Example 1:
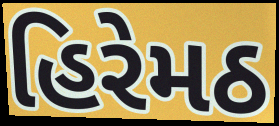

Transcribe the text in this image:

હિરેમઠ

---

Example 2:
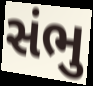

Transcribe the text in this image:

સંભુ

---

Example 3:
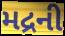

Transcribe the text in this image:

મદ્રની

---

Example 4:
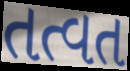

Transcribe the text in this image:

તત્વત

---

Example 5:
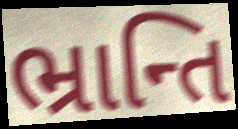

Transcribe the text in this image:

ભ્રાન્તિ